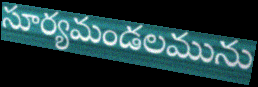
సూర్యమండలమును